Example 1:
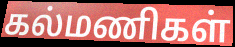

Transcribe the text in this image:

கல்மணிகள்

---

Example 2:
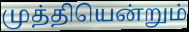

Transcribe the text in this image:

முத்தியென்றும்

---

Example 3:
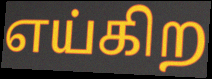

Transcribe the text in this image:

எய்கிற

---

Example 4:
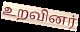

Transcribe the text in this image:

உறவினர்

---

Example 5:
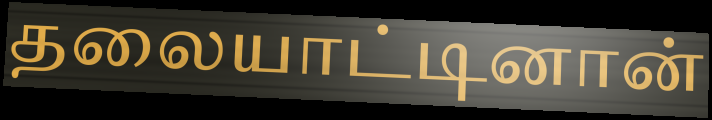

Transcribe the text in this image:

தலையாட்டினான்